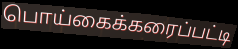
பொய்கைக்கரைப்பட்டி